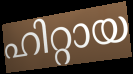
ഹിറ്റായ